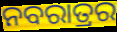
ନବରାତ୍ରର